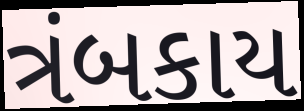
ત્રંબકાય